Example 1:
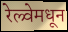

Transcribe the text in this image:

रेल्वेमधून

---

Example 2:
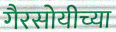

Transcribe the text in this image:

गैरसोयीच्या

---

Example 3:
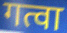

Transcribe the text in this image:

गत्वा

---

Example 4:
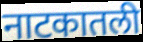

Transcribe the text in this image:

नाटकातली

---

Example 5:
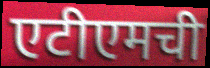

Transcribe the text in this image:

एटीएमची